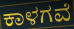
ಕಾಳಗವೆ